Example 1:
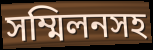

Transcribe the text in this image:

সম্মিলনসহ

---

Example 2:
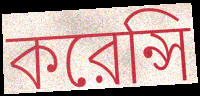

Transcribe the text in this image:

করেন্সি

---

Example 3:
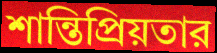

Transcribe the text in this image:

শান্তিপ্রিয়তার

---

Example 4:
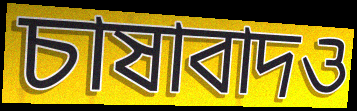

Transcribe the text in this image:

চাষাবাদও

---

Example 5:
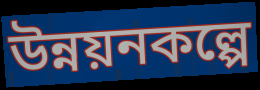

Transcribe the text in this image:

উন্নয়নকল্পে